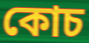
কোচ